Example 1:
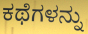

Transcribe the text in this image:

ಕಥೆಗಳನ್ನು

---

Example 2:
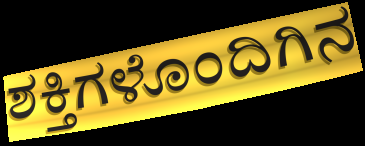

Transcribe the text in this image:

ಶಕ್ತಿಗಳೊಂದಿಗಿನ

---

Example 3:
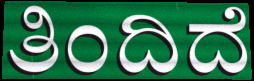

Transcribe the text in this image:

ತಿಂದಿದೆ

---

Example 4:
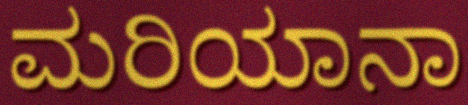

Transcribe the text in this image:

ಮರಿಯಾನಾ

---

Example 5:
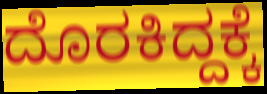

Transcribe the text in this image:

ದೊರಕಿದ್ದಕ್ಕೆ